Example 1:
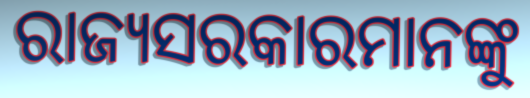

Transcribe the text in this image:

ରାଜ୍ୟସରକାରମାନଙ୍କୁ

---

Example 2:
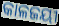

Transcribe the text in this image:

କାଳଜୟୀ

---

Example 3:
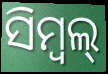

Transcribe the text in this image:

ସିମ୍ବଲ୍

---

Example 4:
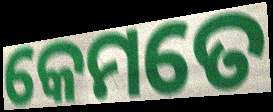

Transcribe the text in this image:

କେମତେ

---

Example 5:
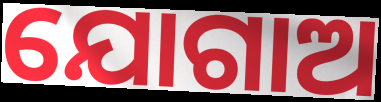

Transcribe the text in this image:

ଯୋଗାଅ